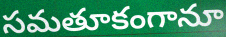
సమతూకంగానూ